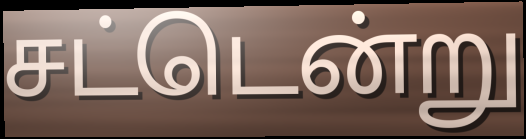
சட்டென்று